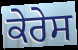
ਕੇਰੇਸ